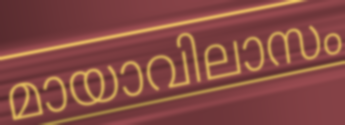
മായാവിലാസം